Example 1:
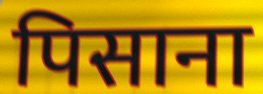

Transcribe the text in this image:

पिसाना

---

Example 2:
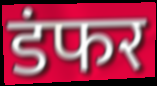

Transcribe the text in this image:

डंफर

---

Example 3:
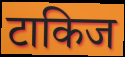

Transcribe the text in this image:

टाकिज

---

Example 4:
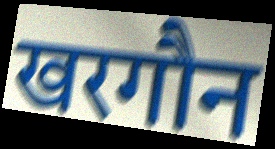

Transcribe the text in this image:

खरगौन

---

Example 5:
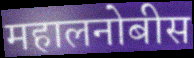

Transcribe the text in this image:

महालनोबीस